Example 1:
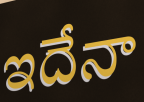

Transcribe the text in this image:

ఇదేనా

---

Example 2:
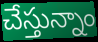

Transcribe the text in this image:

చేస్తున్నాం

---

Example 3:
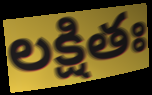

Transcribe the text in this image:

లక్షితః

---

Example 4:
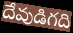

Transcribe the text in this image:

దేవుడిగది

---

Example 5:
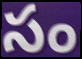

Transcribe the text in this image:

సం